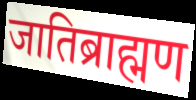
जातिब्राह्मण